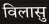
विलासु